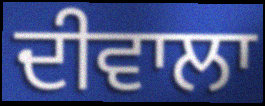
ਦੀਵਾਲਾ